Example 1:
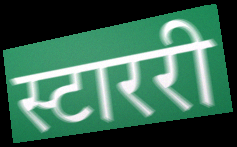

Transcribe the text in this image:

स्टाररी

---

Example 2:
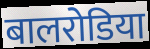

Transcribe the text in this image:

बालरोडिया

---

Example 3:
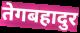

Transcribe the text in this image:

तेगबहादुर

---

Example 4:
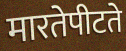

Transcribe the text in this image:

मारतेपीटते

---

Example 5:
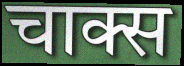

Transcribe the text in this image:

चाक्स